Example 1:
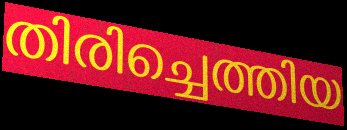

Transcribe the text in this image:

തിരിച്ചെത്തിയ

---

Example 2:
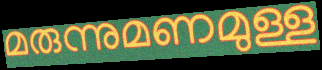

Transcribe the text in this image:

മരുന്നുമണമുള്ള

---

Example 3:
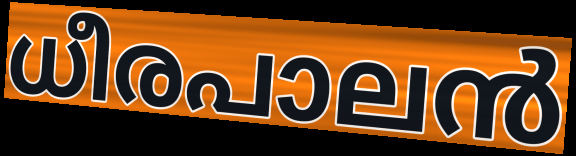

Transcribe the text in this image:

ധീരപാലൻ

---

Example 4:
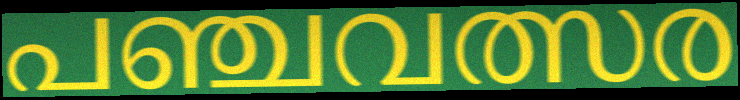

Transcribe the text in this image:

പഞ്ചവത്സര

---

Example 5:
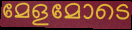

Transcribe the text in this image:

മേളമോടെ